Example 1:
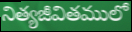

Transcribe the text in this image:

నిత్యజీవితములో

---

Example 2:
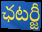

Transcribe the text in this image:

ఛటర్జీ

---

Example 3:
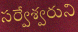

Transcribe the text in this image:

సర్వేశ్వరుని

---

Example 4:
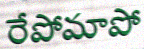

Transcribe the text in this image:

రేపోమాపో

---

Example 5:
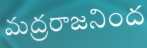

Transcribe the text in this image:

మద్రరాజనింద